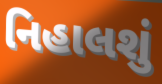
નિહાલશું